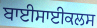
ਬਾਈਸਾਈਕਲਸ